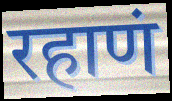
रहाणं